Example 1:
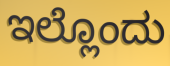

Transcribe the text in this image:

ಇಲ್ಲೊಂದು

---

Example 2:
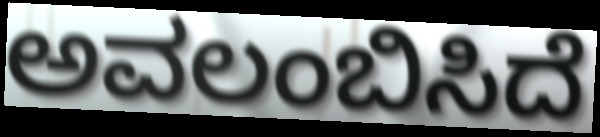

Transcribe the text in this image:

ಅವಲಂಬಿಸಿದೆ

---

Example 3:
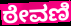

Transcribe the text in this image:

ಠೇವಣಿ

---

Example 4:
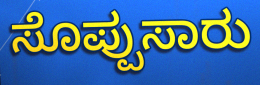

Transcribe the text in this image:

ಸೊಪ್ಪುಸಾರು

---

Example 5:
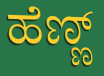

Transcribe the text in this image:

ಹೆಣ್ಣ್